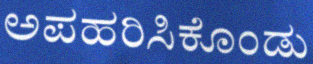
ಅಪಹರಿಸಿಕೊಂಡು